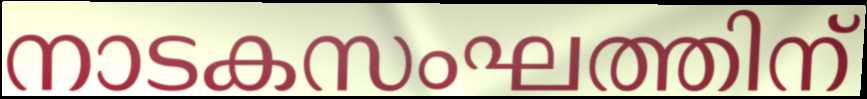
നാടകസംഘത്തിന്